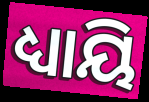
ଧ୍ୟାୟି